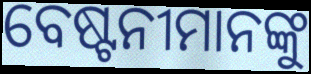
ବେଷ୍ଟନୀମାନଙ୍କୁ